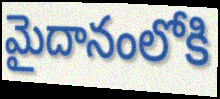
మైదానంలోకి